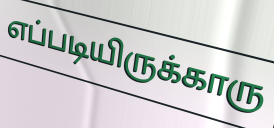
எப்படியிருக்காரு